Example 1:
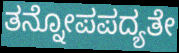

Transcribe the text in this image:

ತನ್ನೋಪಪದ್ಯತೇ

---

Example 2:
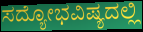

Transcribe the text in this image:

ಸದ್ಯೋಭವಿಷ್ಯದಲ್ಲಿ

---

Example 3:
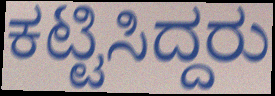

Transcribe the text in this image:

ಕಟ್ಟಿಸಿದ್ದರು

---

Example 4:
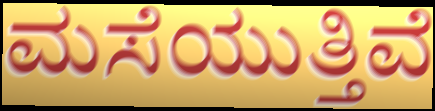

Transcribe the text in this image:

ಮಸೆಯುತ್ತಿವೆ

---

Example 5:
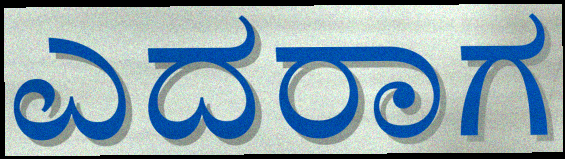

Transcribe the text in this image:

ಎದರಾಗ